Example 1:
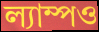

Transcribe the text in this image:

ল্যাম্পও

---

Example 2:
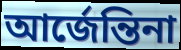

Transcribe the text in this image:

আর্জেন্তিনা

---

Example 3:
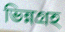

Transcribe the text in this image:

ভিন্নগ্রহ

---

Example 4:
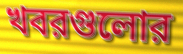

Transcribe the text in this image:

খবরগুলোর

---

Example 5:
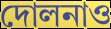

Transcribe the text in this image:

দোলনাও